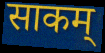
साकम्